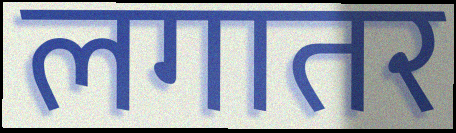
लगातर